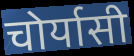
चोर्यासी